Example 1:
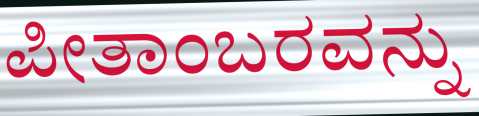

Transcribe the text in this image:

ಪೀತಾಂಬರವನ್ನು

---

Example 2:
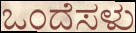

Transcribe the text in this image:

ಒಂದೆಸಳು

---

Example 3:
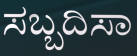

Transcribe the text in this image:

ಸಬ್ಬದಿಸಾ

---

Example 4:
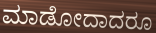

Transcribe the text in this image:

ಮಾಡೋದಾದರೂ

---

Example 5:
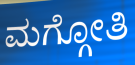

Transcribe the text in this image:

ಮಗ್ಗೋತಿ